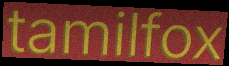
tamilfox